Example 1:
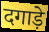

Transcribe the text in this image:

दगाड़े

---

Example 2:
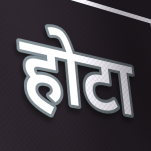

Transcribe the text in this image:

होटा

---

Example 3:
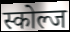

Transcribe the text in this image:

स्कोल्ज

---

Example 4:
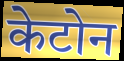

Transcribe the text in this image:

केटोन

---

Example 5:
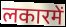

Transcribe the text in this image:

लकारमें